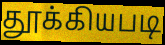
தூக்கியபடி